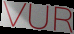
VUR